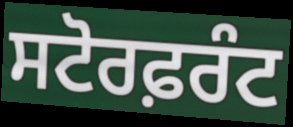
ਸਟੋਰਫ਼ਰੰਟ